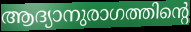
ആദ്യാനുരാഗത്തിന്റെ